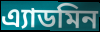
এ্যাডমিন